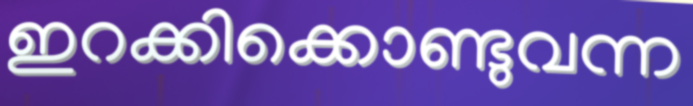
ഇറക്കിക്കൊണ്ടുവന്ന